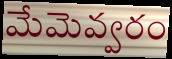
మేమెవ్వరం